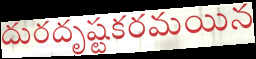
దురదృష్టకరమయిన